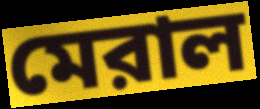
মেরাল